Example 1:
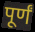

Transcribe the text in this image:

पूर्णं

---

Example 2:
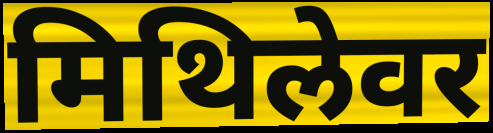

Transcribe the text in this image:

मिथिलेवर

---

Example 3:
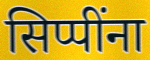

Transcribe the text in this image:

सिप्पींना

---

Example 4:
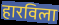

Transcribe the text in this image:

हारविला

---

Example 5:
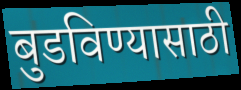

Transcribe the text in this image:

बुडविण्यासाठी